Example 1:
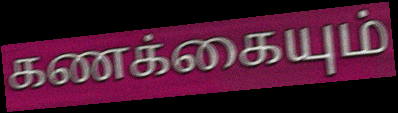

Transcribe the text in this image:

கணக்கையும்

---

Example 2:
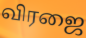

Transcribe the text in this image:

விரஜை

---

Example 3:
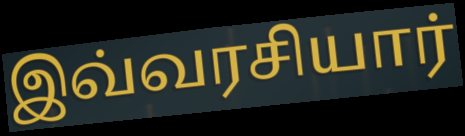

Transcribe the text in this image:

இவ்வரசியார்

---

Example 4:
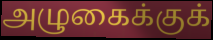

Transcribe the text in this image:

அழுகைக்குக்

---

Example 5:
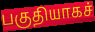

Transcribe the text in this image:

பகுதியாகச்